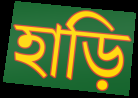
হাড়ি